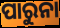
ପାରୁନା